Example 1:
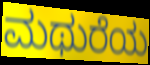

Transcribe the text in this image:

ಮಥುರೆಯ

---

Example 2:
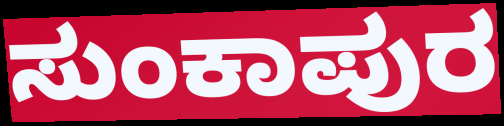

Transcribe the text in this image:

ಸುಂಕಾಪುರ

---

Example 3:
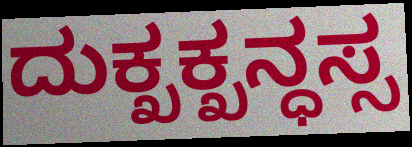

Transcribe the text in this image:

ದುಕ್ಖಕ್ಖನ್ಧಸ್ಸ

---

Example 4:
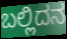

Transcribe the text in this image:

ಬಲ್ಲಿದನ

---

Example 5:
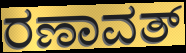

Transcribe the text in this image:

ರಣಾವತ್